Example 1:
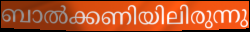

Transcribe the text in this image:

ബാൽക്കണിയിലിരുന്നു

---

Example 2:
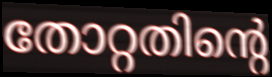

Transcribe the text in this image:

തോറ്റതിന്റെ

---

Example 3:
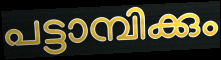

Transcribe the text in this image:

പട്ടാമ്പിക്കും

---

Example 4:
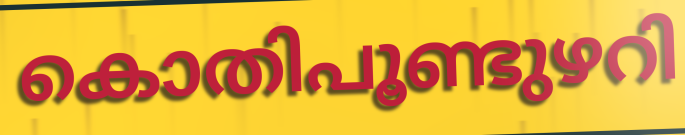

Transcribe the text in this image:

കൊതിപൂണ്ടുഴറി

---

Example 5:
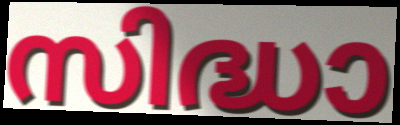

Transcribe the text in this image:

സിദ്ധാ